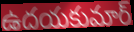
ఉదయకుమార్